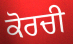
ਕੋਰਚੀ